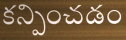
కన్పించడం